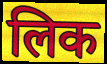
लिक